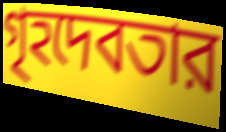
গৃহদেবতার